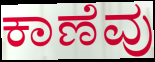
ಕಾಣೆವು